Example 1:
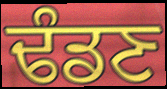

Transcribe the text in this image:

ਢੰਡਣ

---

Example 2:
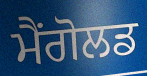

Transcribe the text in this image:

ਮੈਂਗੋਲਡ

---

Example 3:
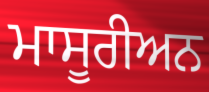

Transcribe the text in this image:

ਮਾਸੂਰੀਅਨ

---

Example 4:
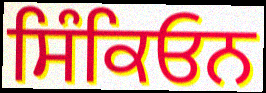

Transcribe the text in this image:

ਸਿੰਕਿਓਨ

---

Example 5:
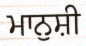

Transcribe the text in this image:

ਮਾਨੁਸ਼ੀ